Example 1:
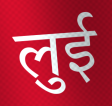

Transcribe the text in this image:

लुई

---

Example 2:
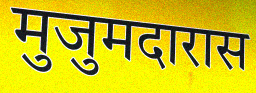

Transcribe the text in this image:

मुजुमदारास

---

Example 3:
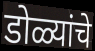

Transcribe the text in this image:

डोळ्यांचे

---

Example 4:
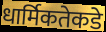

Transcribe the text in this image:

धार्मिकतेकडे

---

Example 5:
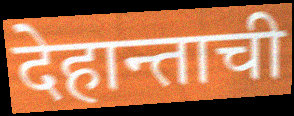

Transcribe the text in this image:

देहान्ताची